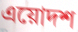
এয়োদশ